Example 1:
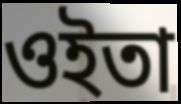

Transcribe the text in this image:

ওইতা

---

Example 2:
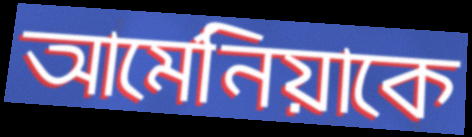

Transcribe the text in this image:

আর্মেনিয়াকে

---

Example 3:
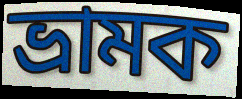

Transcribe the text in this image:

ভ্রামক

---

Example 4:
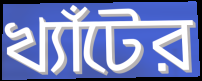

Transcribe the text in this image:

খ্যাঁটের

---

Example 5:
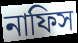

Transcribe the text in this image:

নাফিস